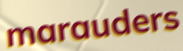
marauders